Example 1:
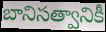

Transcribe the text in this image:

బానిసత్వానికీ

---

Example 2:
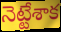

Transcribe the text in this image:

నెట్టేశాక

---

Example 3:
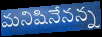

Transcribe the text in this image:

మనిషినేనన్న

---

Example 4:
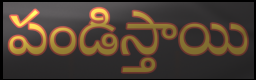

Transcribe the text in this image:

పండిస్తాయి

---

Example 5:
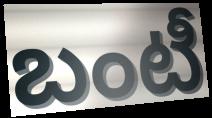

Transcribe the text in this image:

బంటీ